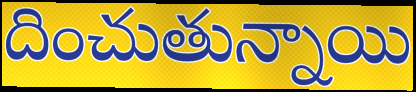
దించుతున్నాయి